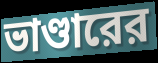
ভাণ্ডারের